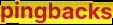
pingbacks